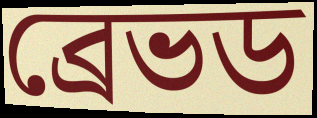
ব্রেভড